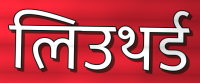
लिउथर्ड